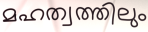
മഹത്വത്തിലും